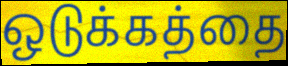
ஒடுக்கத்தை